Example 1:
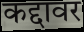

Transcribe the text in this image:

कद्दावर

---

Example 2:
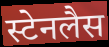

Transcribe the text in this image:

स्टेनलैस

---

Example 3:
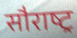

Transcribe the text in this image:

सौराष्ट्र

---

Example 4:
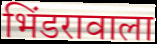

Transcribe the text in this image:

भिंडरावाला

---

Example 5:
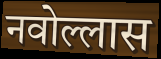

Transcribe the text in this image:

नवोल्लास